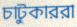
চাটুকাররা